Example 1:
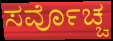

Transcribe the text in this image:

ಸರ್ವೊಚ್ಚ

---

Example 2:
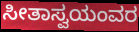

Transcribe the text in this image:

ಸೀತಾಸ್ವಯಂವರ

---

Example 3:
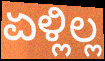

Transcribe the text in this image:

ಏಳ್ಲಿಲ್ಲ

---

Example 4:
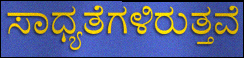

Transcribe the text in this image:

ಸಾಧ್ಯತೆಗಳಿರುತ್ತವೆ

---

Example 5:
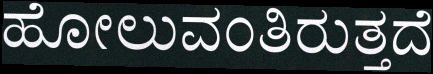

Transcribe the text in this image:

ಹೋಲುವಂತಿರುತ್ತದೆ